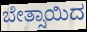
ಬೇತ್ಸಾಯಿದ